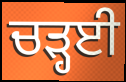
ਚੜ੍ਹਈ